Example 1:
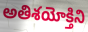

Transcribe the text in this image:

అతిశయోక్తిని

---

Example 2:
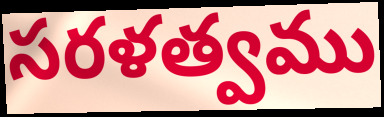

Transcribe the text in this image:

సరళత్వము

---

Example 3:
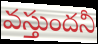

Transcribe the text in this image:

వస్తుందనీ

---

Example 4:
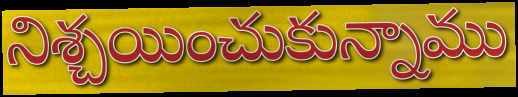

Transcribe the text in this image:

నిశ్చయించుకున్నాము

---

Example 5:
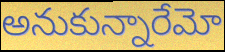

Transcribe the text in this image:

అనుకున్నారేమో